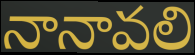
నానావలి